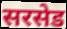
सरसेड